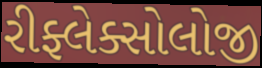
રીફ્લેક્સોલોજી